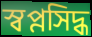
স্বপ্নসিদ্ধ